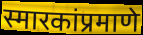
स्मारकांप्रमाणे